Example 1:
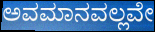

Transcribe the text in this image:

ಅವಮಾನವಲ್ಲವೇ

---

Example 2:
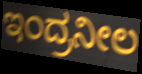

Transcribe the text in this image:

ಇಂದ್ರನೀಲ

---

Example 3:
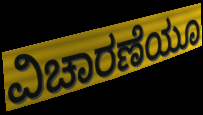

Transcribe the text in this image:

ವಿಚಾರಣೆಯೂ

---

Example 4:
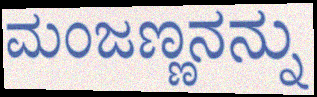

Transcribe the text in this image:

ಮಂಜಣ್ಣನನ್ನು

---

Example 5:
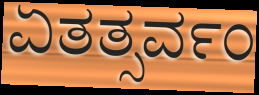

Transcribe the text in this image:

ಏತತ್ಸರ್ವಂ